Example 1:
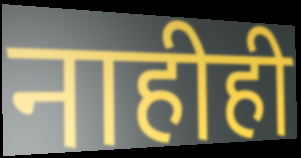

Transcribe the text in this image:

नाहीही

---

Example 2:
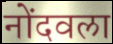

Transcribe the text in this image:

नोंदवला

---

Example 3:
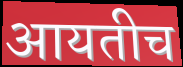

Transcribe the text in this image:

आयतीच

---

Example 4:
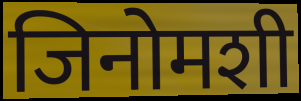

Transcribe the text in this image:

जिनोमशी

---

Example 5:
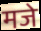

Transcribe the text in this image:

मजे